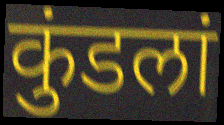
कुंडलां